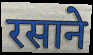
रसाने